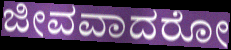
ಜೀವವಾದರೋ